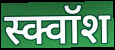
स्क्वॉश